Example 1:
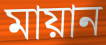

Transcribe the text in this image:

মায়ান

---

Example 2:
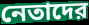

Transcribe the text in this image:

নেতাদের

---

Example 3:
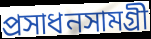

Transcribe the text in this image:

প্রসাধনসামগ্রী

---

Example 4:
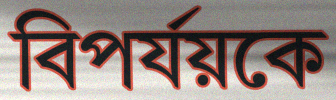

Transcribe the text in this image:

বিপর্যয়কে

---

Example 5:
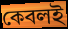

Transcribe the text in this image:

কেবলই